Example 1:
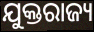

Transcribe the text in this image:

ଯୁକ୍ତରାଜ୍ୟ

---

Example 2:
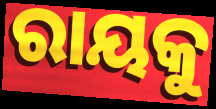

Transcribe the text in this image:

ରାୟକୁ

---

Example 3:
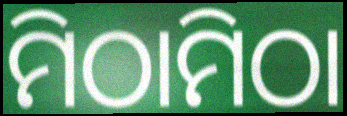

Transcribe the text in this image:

ମିଠାମିଠା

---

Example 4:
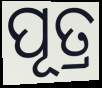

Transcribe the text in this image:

ପୂତ୍ର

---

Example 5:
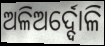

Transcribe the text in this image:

ଅଳିଅର୍ଦ୍ଦୋଳି